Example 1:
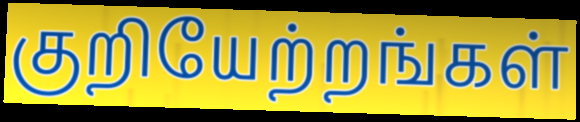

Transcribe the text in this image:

குறியேற்றங்கள்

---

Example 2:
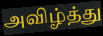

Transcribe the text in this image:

அவிழ்த்து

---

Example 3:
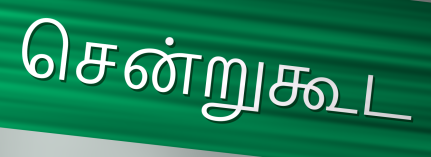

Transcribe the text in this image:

சென்றுகூட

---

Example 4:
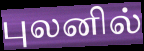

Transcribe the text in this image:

புலனில்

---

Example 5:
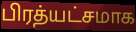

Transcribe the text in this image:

பிரத்யட்சமாக